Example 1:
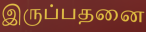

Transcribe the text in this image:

இருப்பதனை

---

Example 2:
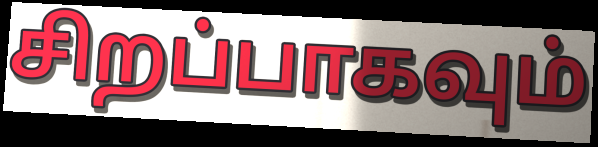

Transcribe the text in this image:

சிறப்பாகவும்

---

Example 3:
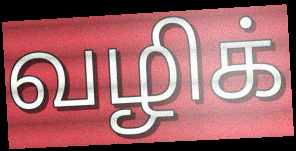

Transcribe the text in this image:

வழிக்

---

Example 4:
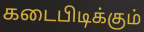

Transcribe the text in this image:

கடைபிடிக்கும்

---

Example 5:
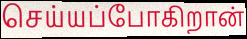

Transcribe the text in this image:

செய்யப்போகிறான்